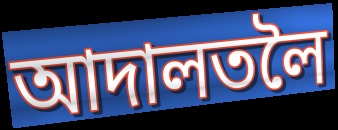
আদালতলৈ